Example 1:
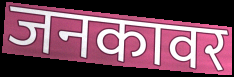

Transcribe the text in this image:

जनकावर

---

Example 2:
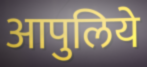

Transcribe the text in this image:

आपुलिये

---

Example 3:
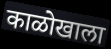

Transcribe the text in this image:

काळोखाला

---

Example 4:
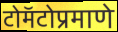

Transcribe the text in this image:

टोमॅटोप्रमाणे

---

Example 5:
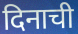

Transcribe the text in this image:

दिनाची